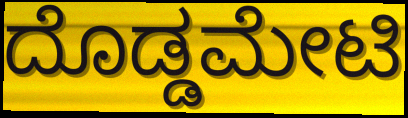
ದೊಡ್ಡಮೇಟಿ